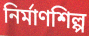
নির্মাণশিল্প